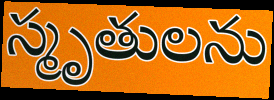
స్మృతులను